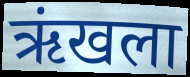
ऋंखला